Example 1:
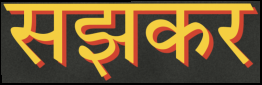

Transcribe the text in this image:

सझकर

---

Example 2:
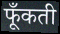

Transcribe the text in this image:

फूँकती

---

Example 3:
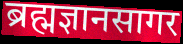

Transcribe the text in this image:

ब्रह्मज्ञानसागर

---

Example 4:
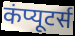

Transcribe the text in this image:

कंप्यूटर्स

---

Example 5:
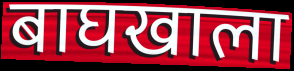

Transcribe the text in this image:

बाघखाला